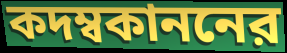
কদম্বকাননের